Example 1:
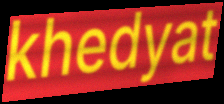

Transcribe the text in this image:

khedyat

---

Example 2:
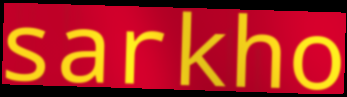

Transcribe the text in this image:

sarkho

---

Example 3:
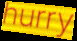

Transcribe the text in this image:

hurry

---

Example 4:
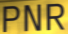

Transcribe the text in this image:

PNR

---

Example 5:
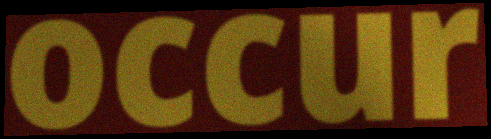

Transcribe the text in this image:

occur